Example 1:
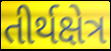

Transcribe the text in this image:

તીર્થક્ષેત્ર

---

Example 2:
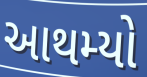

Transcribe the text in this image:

આથમ્યો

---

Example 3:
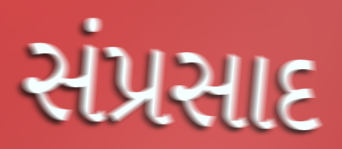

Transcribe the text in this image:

સંપ્રસાદ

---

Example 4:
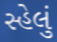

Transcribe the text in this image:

સ્હેલું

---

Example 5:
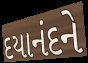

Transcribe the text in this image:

દયાનંદને